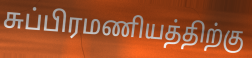
சுப்பிரமணியத்திற்கு